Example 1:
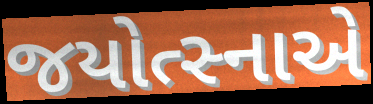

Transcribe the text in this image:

જયોત્સ્નાએ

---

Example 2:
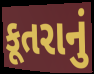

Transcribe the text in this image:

કૂતરાનું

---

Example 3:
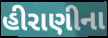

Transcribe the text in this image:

હીરાણીના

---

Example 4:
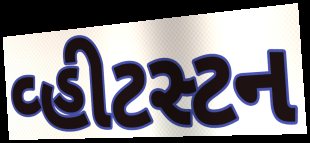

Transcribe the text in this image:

વ્હીટસ્ટન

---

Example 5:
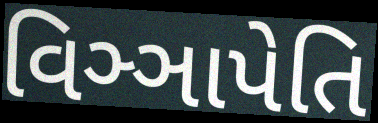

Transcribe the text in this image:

વિઞ્ઞાપેતિ